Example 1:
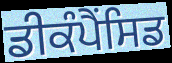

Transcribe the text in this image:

ਡੀਕੰਪੈਂਸਿਡ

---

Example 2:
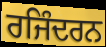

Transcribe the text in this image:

ਰਜਿੰਦਰਨ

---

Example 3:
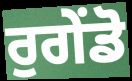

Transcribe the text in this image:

ਰੁਗੇਂਡੋ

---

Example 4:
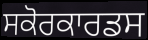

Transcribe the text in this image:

ਸਕੋਰਕਾਰਡਸ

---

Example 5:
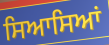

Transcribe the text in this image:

ਸਿਆਸਿਆਂ